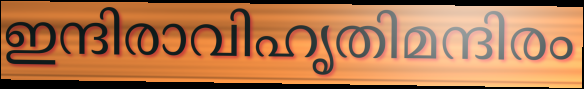
ഇന്ദിരാവിഹൃതിമന്ദിരം